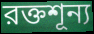
রক্তশূন্য